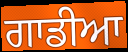
ਗਾਡੀਆ